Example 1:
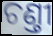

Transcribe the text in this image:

ଚଣ୍ତୀ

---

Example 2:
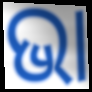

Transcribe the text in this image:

ଭା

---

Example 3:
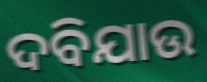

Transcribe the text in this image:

ଦବିଯାଉ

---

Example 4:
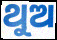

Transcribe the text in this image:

ଥୁଅ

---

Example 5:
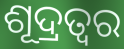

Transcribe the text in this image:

ଶୂଦ୍ରତ୍ଵର